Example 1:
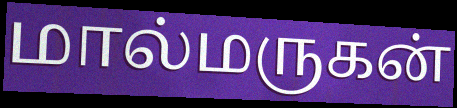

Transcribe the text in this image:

மால்மருகன்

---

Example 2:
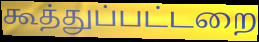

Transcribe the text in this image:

கூத்துப்பட்டறை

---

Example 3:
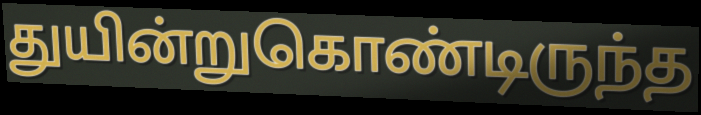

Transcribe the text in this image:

துயின்றுகொண்டிருந்த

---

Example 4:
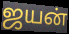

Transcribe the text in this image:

ஜயன்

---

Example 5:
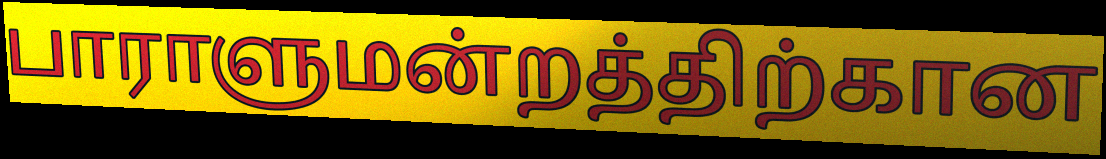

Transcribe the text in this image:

பாராளுமன்றத்திற்கான